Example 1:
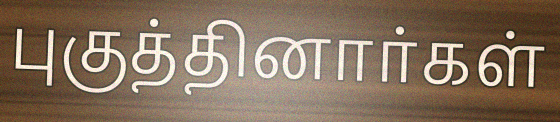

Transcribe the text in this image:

புகுத்தினார்கள்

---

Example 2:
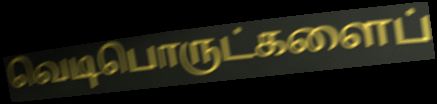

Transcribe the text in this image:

வெடிபொருட்களைப்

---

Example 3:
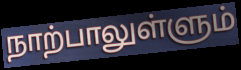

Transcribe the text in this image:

நாற்பாலுள்ளும்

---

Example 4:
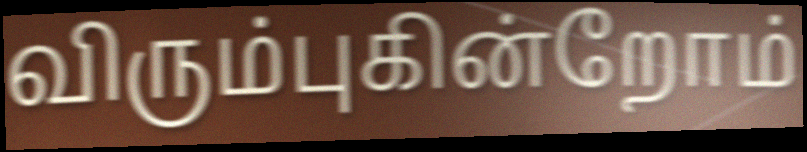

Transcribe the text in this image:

விரும்புகின்றோம்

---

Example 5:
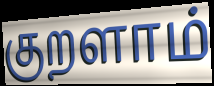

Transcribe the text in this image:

குறளாம்